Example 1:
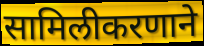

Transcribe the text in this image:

सामिलीकरणाने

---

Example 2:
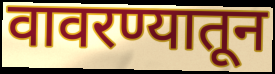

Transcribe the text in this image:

वावरण्यातून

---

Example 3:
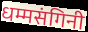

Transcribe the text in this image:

धम्मसंगिनी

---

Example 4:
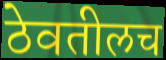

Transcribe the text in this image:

ठेवतीलच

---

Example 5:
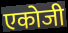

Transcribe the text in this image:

एकोजी